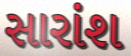
સારાંશ